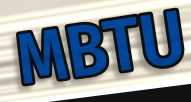
MBTU